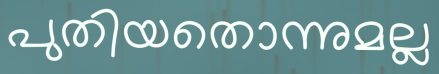
പുതിയതൊന്നുമല്ല